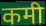
कमी